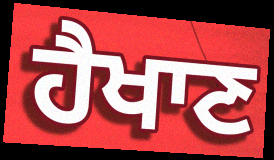
ਹੈਖਾਣ